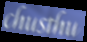
chusthu